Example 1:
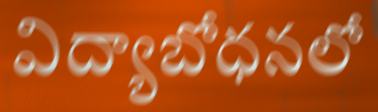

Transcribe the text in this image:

విద్యాబోధనలో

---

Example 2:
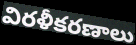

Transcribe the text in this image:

విరళీకరణాలు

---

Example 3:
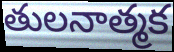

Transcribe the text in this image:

తులనాత్మక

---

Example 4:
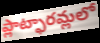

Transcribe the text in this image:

ప్లాట్ఫారమ్లలో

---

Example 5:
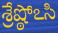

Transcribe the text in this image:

శ్రేష్ఠోఽసి